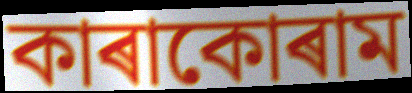
কাৰাকোৰাম